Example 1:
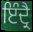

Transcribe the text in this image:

ਇੰਦ੍ਰੈ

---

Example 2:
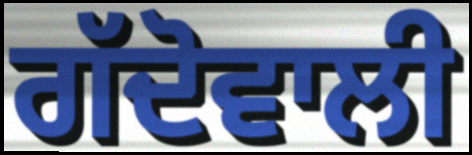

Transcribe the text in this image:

ਗੱਦੋਵਾਲੀ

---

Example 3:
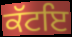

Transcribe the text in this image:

ਕੱਟਇ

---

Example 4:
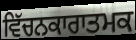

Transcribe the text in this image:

ਵਿੱਚਨਕਾਰਾਤਮਕ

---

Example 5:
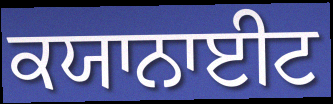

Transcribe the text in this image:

ਕਯਾਨਾਈਟ